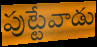
పుట్టేవాడు